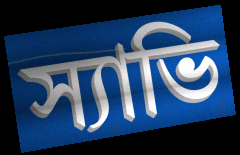
স্যাভি